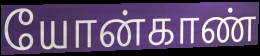
யோன்காண்